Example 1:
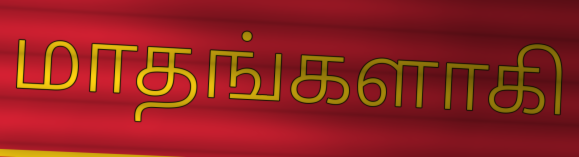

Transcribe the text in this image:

மாதங்களாகி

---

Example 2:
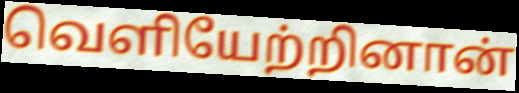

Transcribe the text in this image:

வெளியேற்றினான்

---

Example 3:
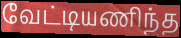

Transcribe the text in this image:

வேட்டியணிந்த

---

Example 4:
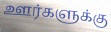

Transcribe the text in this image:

ஊர்களுக்கு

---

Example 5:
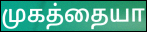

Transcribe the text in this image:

முகத்தையா